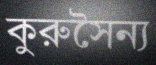
কুরুসৈন্য